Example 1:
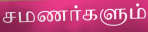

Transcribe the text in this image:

சமணர்களும்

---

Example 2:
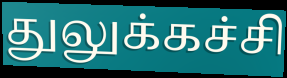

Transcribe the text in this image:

துலுக்கச்சி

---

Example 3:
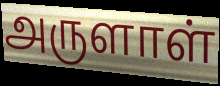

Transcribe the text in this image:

அருளாள்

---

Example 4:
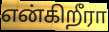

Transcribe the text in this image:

என்கிறீரா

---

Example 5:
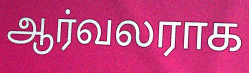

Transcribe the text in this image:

ஆர்வலராக